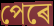
পেৰে